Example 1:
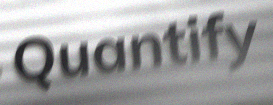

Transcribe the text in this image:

Quantify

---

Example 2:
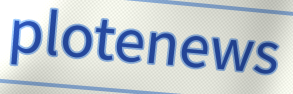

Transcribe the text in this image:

plotenews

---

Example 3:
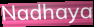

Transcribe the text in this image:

Nadhaya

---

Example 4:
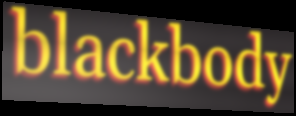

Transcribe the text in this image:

blackbody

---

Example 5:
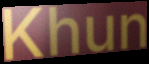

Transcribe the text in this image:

Khun